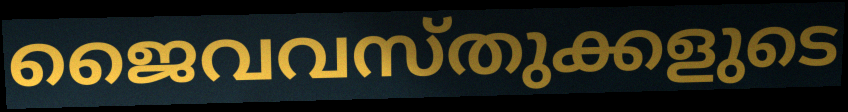
ജൈവവസ്തുക്കളുടെ